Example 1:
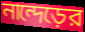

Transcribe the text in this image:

নান্দেড়ের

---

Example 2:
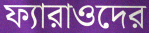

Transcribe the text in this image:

ফ্যারাওদের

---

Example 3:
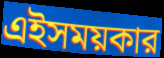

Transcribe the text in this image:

এইসময়কার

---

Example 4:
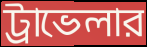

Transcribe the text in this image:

ট্রাভেলার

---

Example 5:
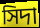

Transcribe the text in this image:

সিদা